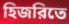
হিজরিতে